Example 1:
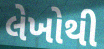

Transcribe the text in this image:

લેખોથી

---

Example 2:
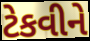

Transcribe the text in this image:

ટેકવીને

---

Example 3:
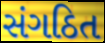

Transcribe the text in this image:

સંગઠિત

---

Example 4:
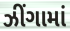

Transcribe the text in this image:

ઝીંગામાં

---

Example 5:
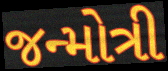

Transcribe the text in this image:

જન્મોત્રી